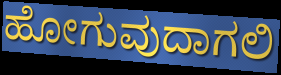
ಹೋಗುವುದಾಗಲಿ